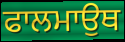
ਫਾਲਮਾਉਥ